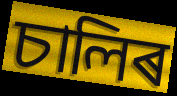
চালিৰ